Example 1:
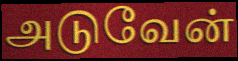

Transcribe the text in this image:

அடுவேன்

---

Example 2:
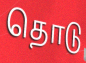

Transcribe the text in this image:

தொடு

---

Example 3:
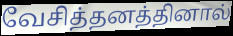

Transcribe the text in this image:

வேசித்தனத்தினால்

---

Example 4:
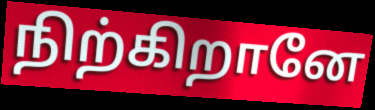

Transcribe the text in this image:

நிற்கிறானே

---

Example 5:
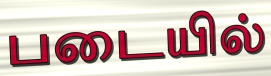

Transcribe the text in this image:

படையில்